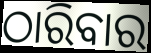
ଠାରିବାର